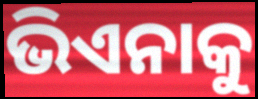
ଭିଏନାକୁ